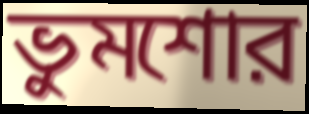
ভুমশোর